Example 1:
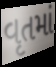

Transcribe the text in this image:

વૃતમાં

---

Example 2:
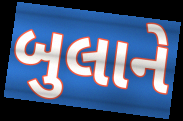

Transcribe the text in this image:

બુલાને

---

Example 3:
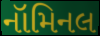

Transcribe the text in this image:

નૉમિનલ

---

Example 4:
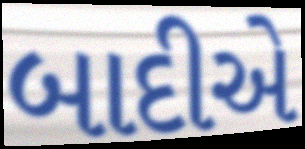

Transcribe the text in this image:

બાદીએ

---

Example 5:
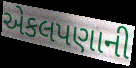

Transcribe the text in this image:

એકલપણાની